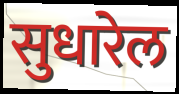
सुधारेल